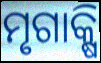
ମୃଗାକ୍ଷି